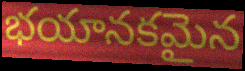
భయానకమైన